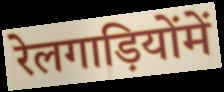
रेलगाड़ियोंमें